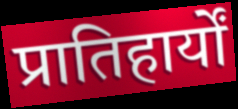
प्रातिहार्यों